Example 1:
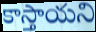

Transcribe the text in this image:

కాస్తాయని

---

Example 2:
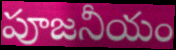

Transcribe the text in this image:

పూజనీయం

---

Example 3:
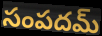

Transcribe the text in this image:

సంపదమ్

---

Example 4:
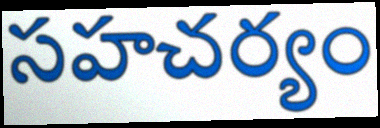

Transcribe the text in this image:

సహచర్యం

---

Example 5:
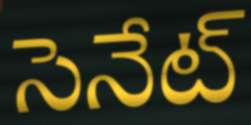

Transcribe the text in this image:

సెనేట్